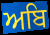
ਅਬਿ